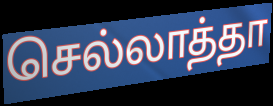
செல்லாத்தா